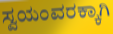
ಸ್ವಯಂವರಕ್ಕಾಗಿ